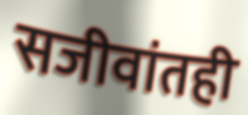
सजीवांतही